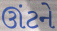
ઊંટને